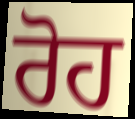
ਰੋਹ